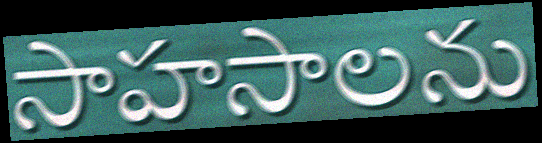
సాహసాలను